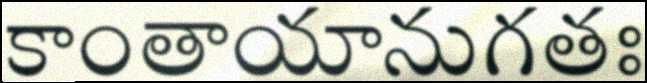
కాంతాయానుగతః